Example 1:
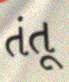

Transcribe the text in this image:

તંતૂ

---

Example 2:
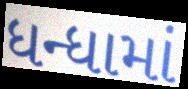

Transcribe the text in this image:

ધન્ધામાં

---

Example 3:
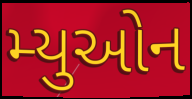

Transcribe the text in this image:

મ્યુઓન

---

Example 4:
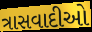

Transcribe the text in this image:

ત્રાસવાદીઓ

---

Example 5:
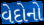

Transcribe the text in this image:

વેદોનો